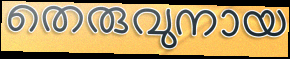
തെരുവുനായ